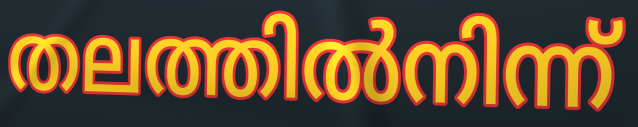
തലത്തിൽനിന്ന്